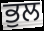
ਭੁਲ